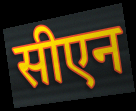
सीएन